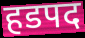
हडपद